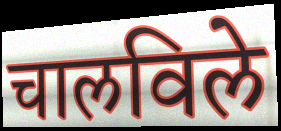
चालविले